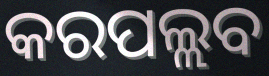
କରପଲ୍ଲବ